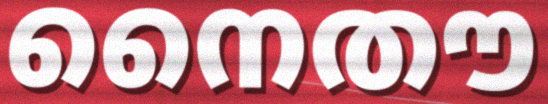
നൈതൗ